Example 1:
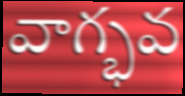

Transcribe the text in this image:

వాగ్భవ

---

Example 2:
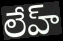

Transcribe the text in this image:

లేహ్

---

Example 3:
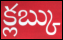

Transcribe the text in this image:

క్లబ్కు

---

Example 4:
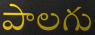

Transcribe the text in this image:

పాలగు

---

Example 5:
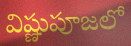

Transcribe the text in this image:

విష్ణుపూజలో